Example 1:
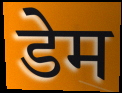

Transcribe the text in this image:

डेम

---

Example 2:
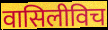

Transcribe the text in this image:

वासिलीविच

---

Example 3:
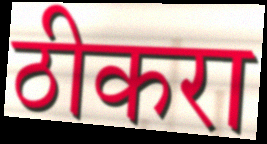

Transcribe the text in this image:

ठीकरा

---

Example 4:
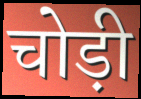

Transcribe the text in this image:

चोड़ी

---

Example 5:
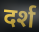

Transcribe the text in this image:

दर्श